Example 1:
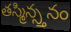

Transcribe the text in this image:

తస్మిన్స్తనం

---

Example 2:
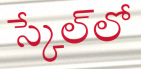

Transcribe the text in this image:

స్కేల్‌లో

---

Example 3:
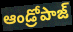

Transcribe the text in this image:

ఆండ్రోపాజ్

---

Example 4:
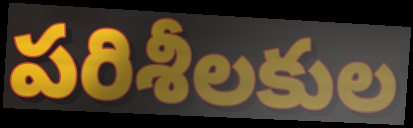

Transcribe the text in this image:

పరిశీలకుల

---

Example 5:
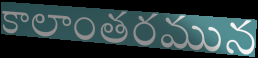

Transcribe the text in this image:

కాలాంతరమున